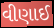
વીણાઈ